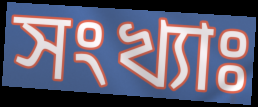
সংখ্যাঃ